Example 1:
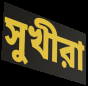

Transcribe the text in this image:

সুখীরা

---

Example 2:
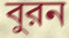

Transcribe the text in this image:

বুরন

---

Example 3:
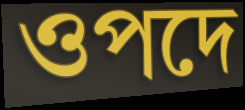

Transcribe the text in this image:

ওপদে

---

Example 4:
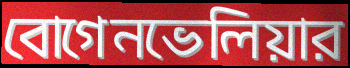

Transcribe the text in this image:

বোগেনভেলিয়ার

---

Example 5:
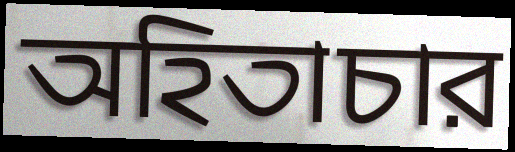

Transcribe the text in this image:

অহিতাচার